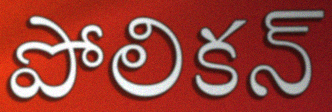
పోలికన్